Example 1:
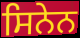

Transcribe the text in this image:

ਸਿਨੇਨ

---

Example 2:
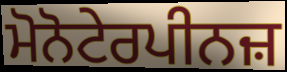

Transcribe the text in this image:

ਮੋਨੋਟੇਰਪੀਨਜ਼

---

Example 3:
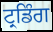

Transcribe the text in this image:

ਟ੍ਰਡਿੰਗ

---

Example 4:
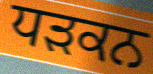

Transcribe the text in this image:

ਧੜਕਨ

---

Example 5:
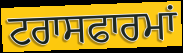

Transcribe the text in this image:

ਟਰਾਸਫਾਰਮਾਂ